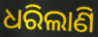
ଧରିଲାଣି